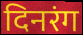
दिनरंग